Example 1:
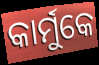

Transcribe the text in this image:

କାର୍ମୁକେ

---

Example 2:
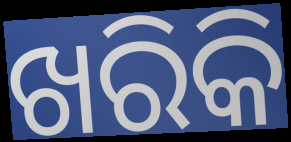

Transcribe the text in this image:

ଖରିକି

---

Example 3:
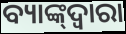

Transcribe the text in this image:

ବ୍ୟାଙ୍କ୍‌ଦ୍ୱାରା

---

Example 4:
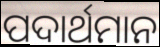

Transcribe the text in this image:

ପଦାର୍ଥମାନ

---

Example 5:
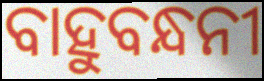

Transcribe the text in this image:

ବାହୁବନ୍ଧନୀ